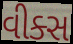
વીક્સ